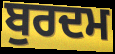
ਬੁਰਦਮ